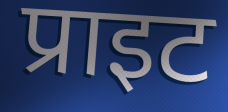
प्राइट